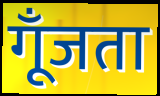
गूँजता